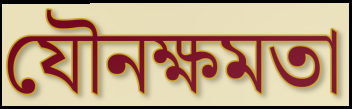
যৌনক্ষমতা